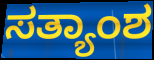
ಸತ್ಯಾಂಶ